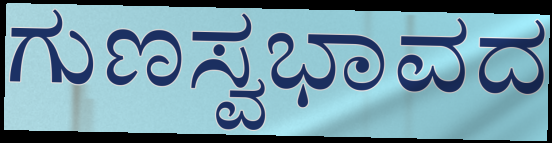
ಗುಣಸ್ವಭಾವದ